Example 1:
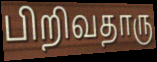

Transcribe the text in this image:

பிறிவதாரு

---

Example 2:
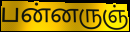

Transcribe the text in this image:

பன்னருஞ்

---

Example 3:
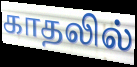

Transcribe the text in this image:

காதலில்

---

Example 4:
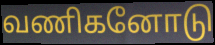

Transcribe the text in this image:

வணிகனோடு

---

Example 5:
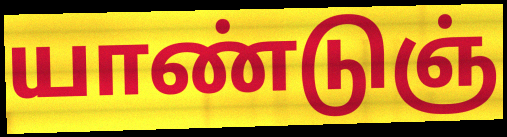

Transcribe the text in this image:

யாண்டுஞ்